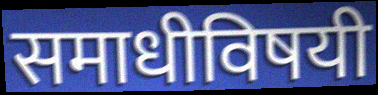
समाधीविषयी